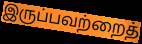
இருப்பவற்றைத்